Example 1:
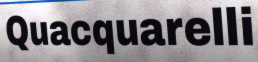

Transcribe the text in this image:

Quacquarelli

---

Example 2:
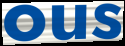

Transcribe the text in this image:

ous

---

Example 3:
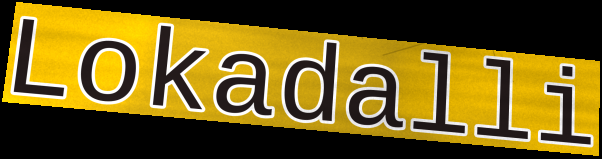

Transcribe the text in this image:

Lokadalli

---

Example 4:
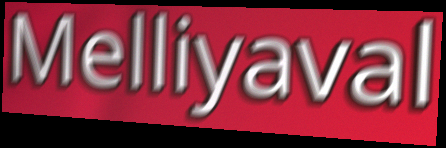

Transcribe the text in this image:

Melliyaval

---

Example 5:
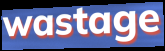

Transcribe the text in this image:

wastage